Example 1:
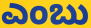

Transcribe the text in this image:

ಎಂಬು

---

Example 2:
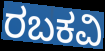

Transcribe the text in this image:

ರಬಕವಿ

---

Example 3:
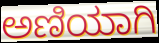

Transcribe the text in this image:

ಅಣಿಯಾಗಿ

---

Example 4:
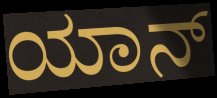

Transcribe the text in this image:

ಯಾನ್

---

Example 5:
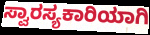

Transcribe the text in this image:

ಸ್ವಾರಸ್ಯಕಾರಿಯಾಗಿ